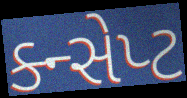
ક્ન્સેપ્ટ